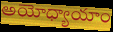
అయోధ్యాయాం